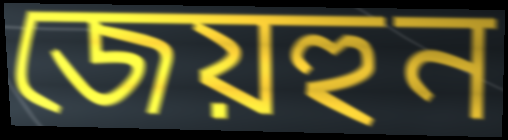
জেয়হুন